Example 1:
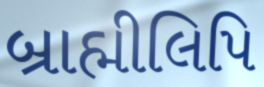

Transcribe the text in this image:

બ્રાહ્મીલિપિ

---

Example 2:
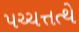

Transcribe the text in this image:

પચ્ચત્તત્થે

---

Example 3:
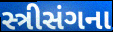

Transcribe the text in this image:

સ્ત્રીસંગના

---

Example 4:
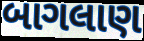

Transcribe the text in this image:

બાગલાણ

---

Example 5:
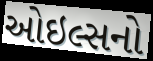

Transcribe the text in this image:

ઓઇલ્સનો